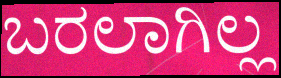
ಬರಲಾಗಿಲ್ಲ